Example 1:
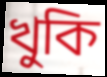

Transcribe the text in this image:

খুকি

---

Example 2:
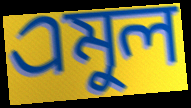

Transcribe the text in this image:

এমুল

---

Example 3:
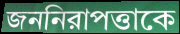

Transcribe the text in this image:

জননিরাপত্তাকে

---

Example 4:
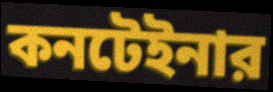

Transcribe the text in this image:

কনটেইনার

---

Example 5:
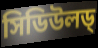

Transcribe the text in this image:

সিডিউলড্